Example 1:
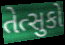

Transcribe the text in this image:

તેત્સુકો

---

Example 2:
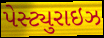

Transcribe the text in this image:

પેસ્ટ્યુરાઇઝ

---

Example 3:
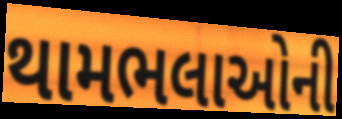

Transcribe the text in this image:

થામભલાઓની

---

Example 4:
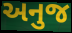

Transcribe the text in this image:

અનુજ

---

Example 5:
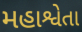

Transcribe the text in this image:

મહાશ્વેતા